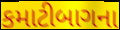
કમાટીબાગના